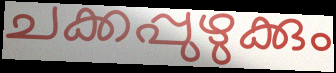
ചക്കപ്പുഴുക്കും